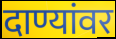
दाण्यांवर